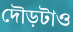
দৌড়টাও